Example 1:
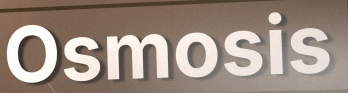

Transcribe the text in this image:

Osmosis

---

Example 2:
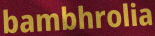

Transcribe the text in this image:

bambhrolia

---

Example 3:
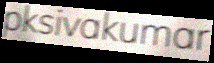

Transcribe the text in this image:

pksivakumar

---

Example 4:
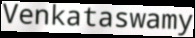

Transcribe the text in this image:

Venkataswamy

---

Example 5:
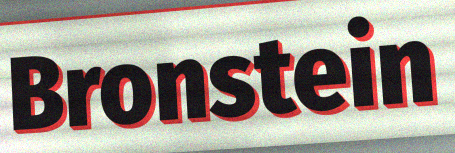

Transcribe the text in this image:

Bronstein